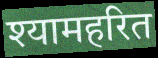
श्यामहरित